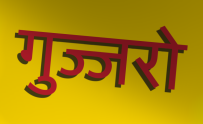
गुज्जरो